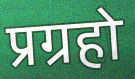
प्रग्रहो